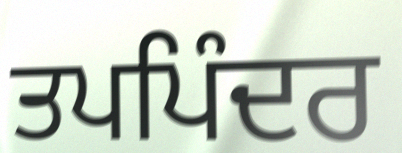
ਤਪਪਿੰਦਰ